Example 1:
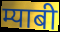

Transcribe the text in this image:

म्याबी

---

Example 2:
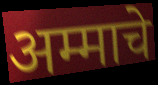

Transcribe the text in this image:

अम्माचे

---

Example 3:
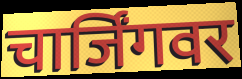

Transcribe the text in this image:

चार्जिंगवर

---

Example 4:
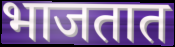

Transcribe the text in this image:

भाजतात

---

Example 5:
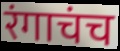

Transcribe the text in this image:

रंगाचंच